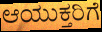
ಆಯುಕ್ತರಿಗೆ